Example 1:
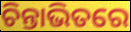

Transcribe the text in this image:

ଚିନ୍ତାଭିତରେ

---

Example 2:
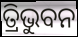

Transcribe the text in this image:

ତ୍ରିଭୁବନ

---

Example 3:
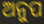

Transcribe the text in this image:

ଅନୁପ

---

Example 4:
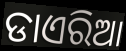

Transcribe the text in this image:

ଡାଏରିଆ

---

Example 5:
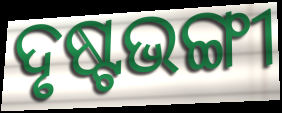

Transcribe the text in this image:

ଦୃଷ୍ଟଭଙ୍ଗୀ